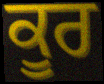
ਕੂਰ